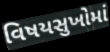
વિષયસુખોમાં